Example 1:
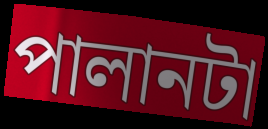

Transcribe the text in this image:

পালানটা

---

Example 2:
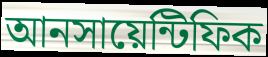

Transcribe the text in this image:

আনসায়েন্টিফিক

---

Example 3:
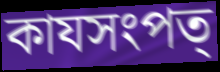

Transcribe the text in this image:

কাযসংপত্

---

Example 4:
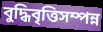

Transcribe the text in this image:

বুদ্ধিবৃত্তিসম্পন্ন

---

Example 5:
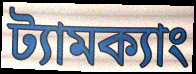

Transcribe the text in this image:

ট্যামক্যাং